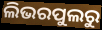
ଲିଭରପୁଲରୁ